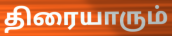
திரையாரும்